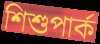
শিশুপার্ক